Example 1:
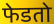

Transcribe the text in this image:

फेडतो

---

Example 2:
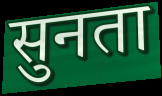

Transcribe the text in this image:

सुनता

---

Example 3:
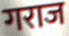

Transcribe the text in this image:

गराज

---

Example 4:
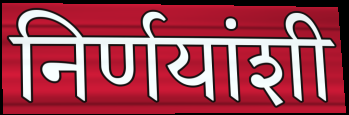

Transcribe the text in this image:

निर्णयांशी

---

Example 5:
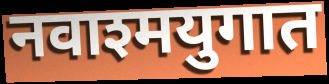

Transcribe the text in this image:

नवाश्मयुगात